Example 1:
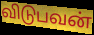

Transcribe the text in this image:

விடுபவன்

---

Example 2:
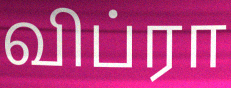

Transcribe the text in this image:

விப்ரா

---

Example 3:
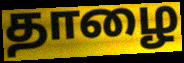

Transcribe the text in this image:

தாழை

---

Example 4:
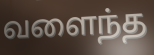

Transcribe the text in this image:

வளைந்த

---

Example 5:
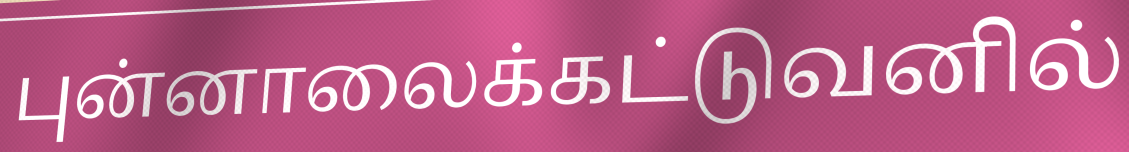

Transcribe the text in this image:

புன்னாலைக்கட்டுவனில்